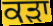
ਕੜਾ